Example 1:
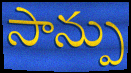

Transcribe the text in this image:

సాన్పు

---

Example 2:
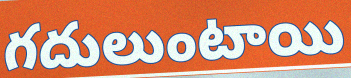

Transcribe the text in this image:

గదులుంటాయి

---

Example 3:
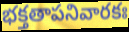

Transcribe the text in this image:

భక్తతాపనివారకః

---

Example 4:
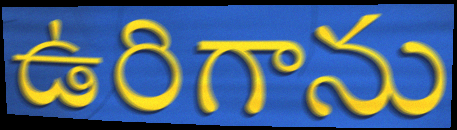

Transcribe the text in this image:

ఉరిగాను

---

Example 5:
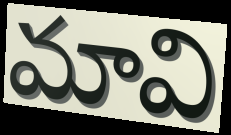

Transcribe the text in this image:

మావి